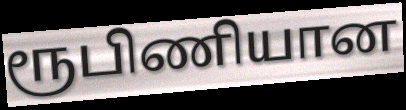
ரூபிணியான